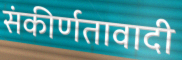
संकीर्णतावादी